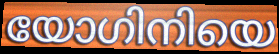
യോഗിനിയെ